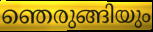
ഞെരുങ്ങിയും